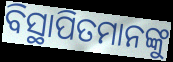
ବିସ୍ଥାପିତମାନଙ୍କୁ